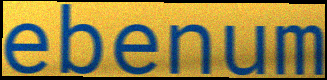
ebenum